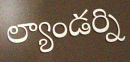
ల్యాండర్ని